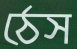
ঠেস